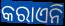
କରାଏନି